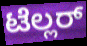
ಟೆಲ್ಲರ್